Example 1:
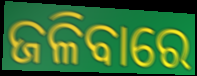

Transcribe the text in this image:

ଜଳିବାରେ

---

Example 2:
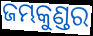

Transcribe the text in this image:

ଜମ୍ଭକୁଣ୍ଡର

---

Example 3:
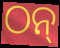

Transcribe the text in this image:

ଠନ୍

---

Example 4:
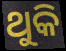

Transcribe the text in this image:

ଥୁକି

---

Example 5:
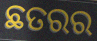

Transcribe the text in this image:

ଛତରର